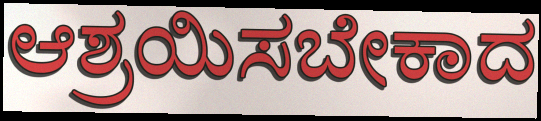
ಆಶ್ರಯಿಸಬೇಕಾದ